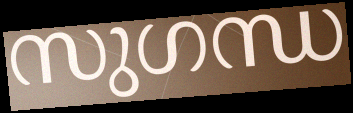
സുഗന്ധ